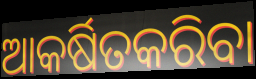
ଆକର୍ଷିତକରିବା